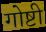
गोष्टी